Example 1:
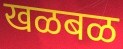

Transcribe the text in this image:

खळबळ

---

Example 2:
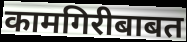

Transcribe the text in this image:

कामगिरीबाबत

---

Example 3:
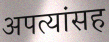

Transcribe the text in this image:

अपत्यांसह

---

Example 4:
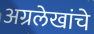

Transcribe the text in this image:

अग्रलेखांचे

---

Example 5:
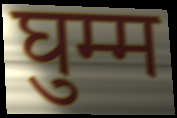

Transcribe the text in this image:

घुम्म